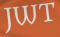
JWT